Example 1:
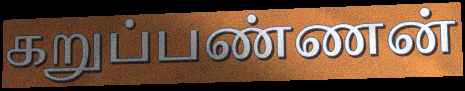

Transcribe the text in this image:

கறுப்பண்ணன்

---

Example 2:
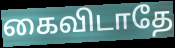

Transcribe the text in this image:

கைவிடாதே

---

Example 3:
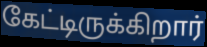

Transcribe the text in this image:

கேட்டிருக்கிறார்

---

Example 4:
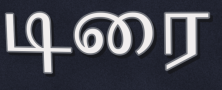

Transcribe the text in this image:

டிரை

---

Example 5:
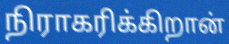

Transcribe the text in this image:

நிராகரிக்கிறான்